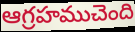
ఆగ్రహముచెంది